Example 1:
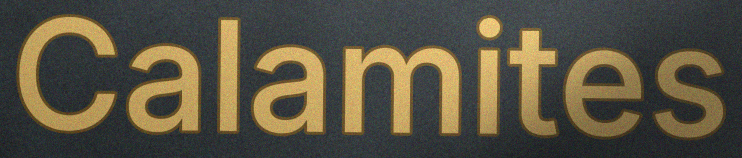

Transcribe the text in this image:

Calamites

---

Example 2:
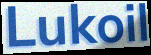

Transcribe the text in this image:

Lukoil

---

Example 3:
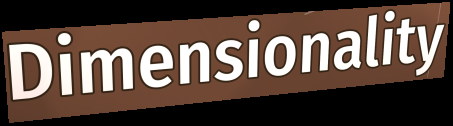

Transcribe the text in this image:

Dimensionality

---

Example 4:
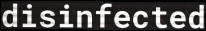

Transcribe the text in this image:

disinfected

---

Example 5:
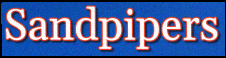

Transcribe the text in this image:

Sandpipers